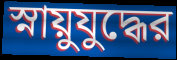
স্নায়ুযুদ্ধের